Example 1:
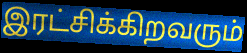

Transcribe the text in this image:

இரட்சிக்கிறவரும்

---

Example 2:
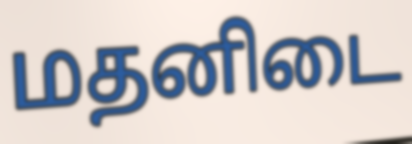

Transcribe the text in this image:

மதனிடை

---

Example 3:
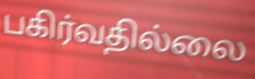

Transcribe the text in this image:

பகிர்வதில்லை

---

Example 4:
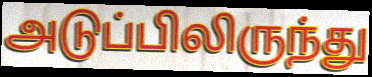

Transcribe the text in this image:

அடுப்பிலிருந்து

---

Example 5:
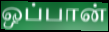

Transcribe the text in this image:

ஒப்பான்